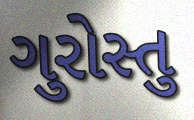
ગુરોસ્તુ